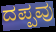
ದಪ್ಪವು